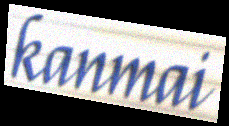
kanmai